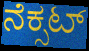
ನೆಕ್ಸಟ್